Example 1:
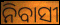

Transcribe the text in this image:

ନିବାସୀ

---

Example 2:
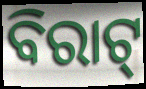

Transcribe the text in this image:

ବିରାଟ୍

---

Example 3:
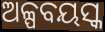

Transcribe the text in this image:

ଅଳ୍ପବୟସ୍କ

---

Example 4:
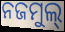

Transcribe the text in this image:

ନଜମୁଲ୍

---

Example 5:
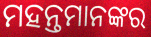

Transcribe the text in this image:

ମହନ୍ତମାନଙ୍କର